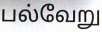
பல்வேறு